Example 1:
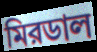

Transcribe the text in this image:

মিরডাল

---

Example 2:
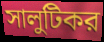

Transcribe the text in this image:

সালুটিকর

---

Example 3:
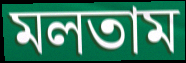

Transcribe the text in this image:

মলতাম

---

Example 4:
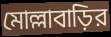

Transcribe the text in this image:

মোল্লাবাড়ির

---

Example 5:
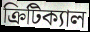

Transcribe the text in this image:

ক্রিটিক্যাল